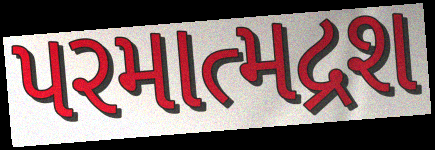
પરમાત્મદ્રશ